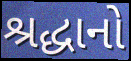
શ્રદ્ધાનો